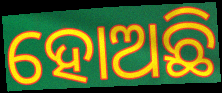
ହୋଅଛି